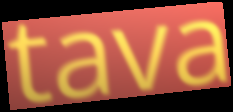
tava